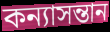
কন্যাসন্তান